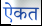
ऐकत